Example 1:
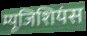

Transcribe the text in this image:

म्यूजिशियंस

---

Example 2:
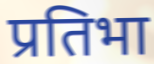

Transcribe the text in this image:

प्रतिभा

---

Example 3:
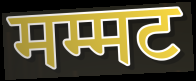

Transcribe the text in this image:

मम्मट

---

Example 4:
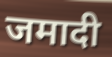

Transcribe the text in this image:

जमादी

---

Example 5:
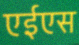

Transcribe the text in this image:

एईएस